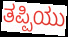
ತಪ್ಪಿಯು